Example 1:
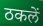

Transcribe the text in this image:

ठकलें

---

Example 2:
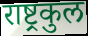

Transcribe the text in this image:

राष्ट्रकुल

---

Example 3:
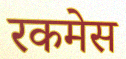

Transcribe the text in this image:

रकमेस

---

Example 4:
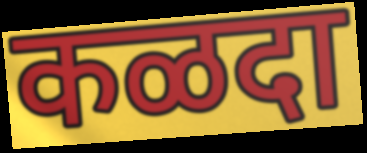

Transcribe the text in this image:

कळदा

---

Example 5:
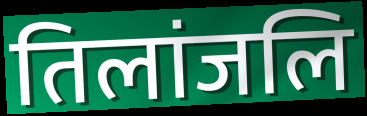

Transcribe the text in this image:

तिलांजलि